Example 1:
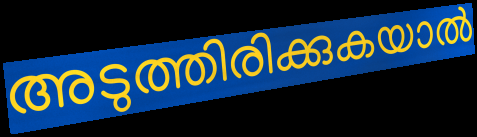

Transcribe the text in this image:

അടുത്തിരിക്കുകയാൽ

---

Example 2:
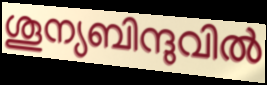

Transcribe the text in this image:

ശൂന്യബിന്ദുവിൽ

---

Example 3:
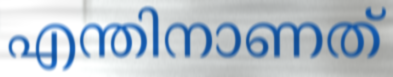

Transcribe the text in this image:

എന്തിനാണത്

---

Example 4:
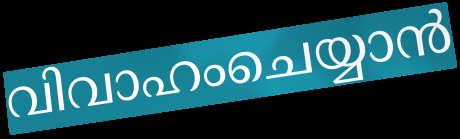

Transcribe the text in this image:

വിവാഹംചെയ്യാൻ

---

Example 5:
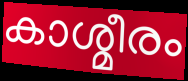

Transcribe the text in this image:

കാശ്മീരം